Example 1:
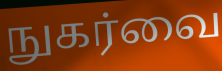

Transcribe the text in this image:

நுகர்வை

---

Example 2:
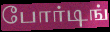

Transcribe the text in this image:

போர்டிங்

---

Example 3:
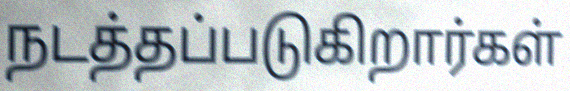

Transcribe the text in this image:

நடத்தப்படுகிறார்கள்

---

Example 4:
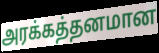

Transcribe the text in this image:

அரக்கத்தனமான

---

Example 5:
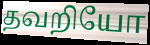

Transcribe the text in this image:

தவறியோ